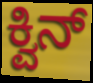
ಕ್ವಿನ್